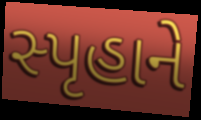
સ્પૃહાને